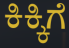
ಕಿಕ್ಕಿಗೆ